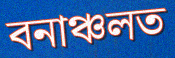
বনাঞ্চলত